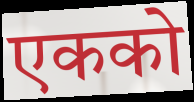
एकको